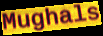
Mughals